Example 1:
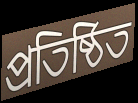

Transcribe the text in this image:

প্রতিষ্ঠিত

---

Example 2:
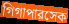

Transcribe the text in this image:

গিগাপারসেক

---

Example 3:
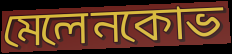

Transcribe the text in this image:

মেলেনকোভ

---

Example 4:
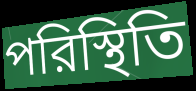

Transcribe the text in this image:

পরিস্থিতি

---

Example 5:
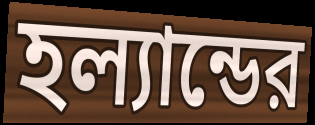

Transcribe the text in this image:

হল্যান্ডের